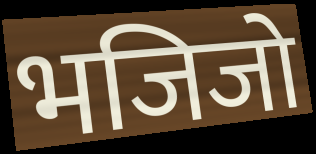
भजिजो